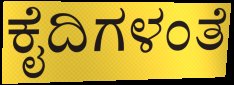
ಕೈದಿಗಳಂತೆ